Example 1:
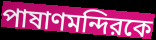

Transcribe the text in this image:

পাষাণমন্দিরকে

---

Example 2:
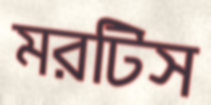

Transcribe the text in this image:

মরটিস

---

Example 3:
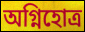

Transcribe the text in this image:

অগ্নিহোত্র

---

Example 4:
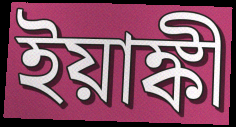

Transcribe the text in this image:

ইয়াঙ্কী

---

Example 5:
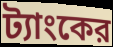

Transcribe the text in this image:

ট্যাংকের